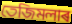
তেজিমলাৰ